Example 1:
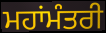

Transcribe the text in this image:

ਮਹਾਂਮੰਤਰੀ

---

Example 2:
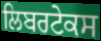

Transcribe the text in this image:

ਲਿਬਰਟੇਕਸ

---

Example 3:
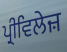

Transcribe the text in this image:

ਪ੍ਰੀਵਿਲੇਜ਼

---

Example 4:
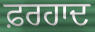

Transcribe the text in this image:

ਫ਼ਰਹਾਦ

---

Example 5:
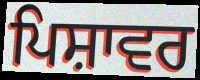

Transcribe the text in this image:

ਪਿਸ਼ਾਵਰ